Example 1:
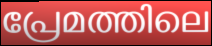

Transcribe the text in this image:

പ്രേമത്തിലെ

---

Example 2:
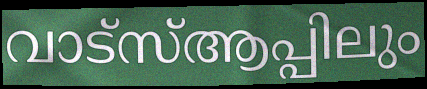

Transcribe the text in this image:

വാട്സ്ആപ്പിലും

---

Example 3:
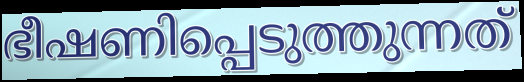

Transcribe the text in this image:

ഭീഷണിപ്പെടുത്തുന്നത്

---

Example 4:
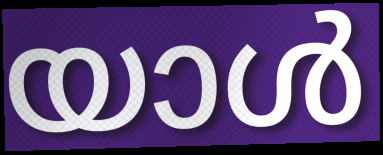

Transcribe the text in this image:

യാൾ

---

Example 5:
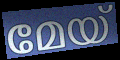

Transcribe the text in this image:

മേയ്